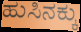
ಹುಸಿನಕ್ಕು